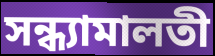
সন্ধ্যামালতী